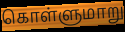
கொள்ளுமாறு